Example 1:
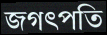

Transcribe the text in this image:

জগৎপতি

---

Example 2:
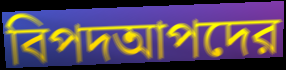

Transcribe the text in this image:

বিপদআপদের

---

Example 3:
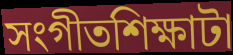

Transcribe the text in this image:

সংগীতশিক্ষাটা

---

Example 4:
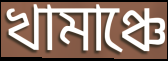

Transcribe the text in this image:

খামাঞ্চে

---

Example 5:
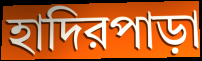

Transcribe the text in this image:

হাদিরপাড়া